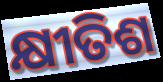
କ୍ଷୀତିଶ